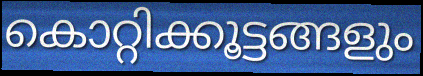
കൊറ്റിക്കൂട്ടങ്ങളും